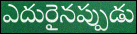
ఎదురైనప్పుడు